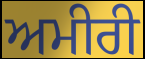
ਅਮੀਰੀ